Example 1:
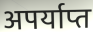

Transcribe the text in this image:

अपर्याप्त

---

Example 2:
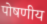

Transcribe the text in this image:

पोषणीय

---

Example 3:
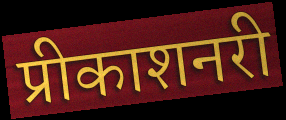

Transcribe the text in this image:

प्रीकाशनरी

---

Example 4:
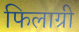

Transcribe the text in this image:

फिलाग्री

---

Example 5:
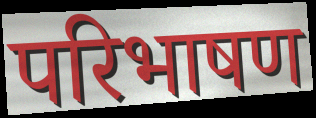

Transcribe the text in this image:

परिभाषण